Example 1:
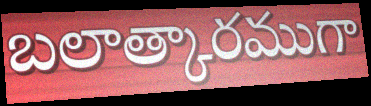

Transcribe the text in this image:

బలాత్కారముగా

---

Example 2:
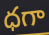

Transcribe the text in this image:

ధగా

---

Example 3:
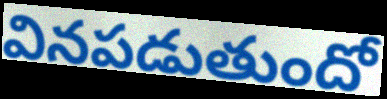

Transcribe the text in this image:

వినపడుతుందో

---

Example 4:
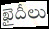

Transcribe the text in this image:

ఖైదీలు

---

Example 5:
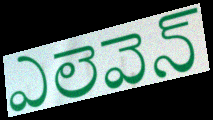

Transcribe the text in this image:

ఎలెవెన్